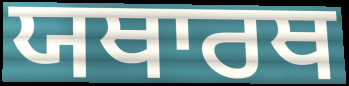
ਯਥਾਰਥ